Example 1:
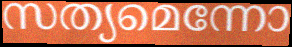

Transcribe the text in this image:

സത്യമെന്നോ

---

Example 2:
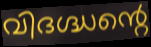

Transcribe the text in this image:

വിദഗ്ദ്ധന്റെ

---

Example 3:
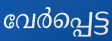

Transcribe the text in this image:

വേർപ്പെട്ട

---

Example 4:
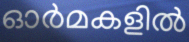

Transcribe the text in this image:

ഓർമകളിൽ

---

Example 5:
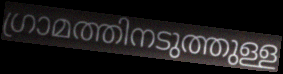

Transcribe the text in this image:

ഗ്രാമത്തിനടുത്തുള്ള